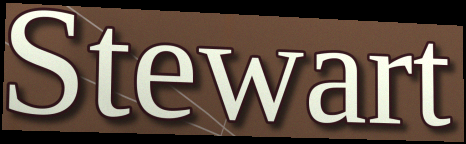
Stewart